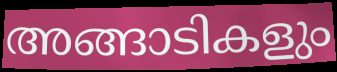
അങ്ങാടികളും